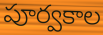
పూర్వకాల